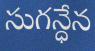
సుగన్ధేన